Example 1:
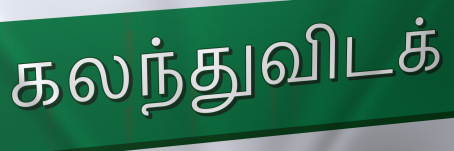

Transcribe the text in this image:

கலந்துவிடக்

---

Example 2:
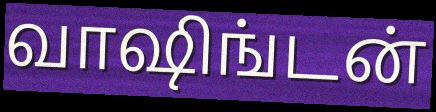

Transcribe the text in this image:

வாஷிங்டன்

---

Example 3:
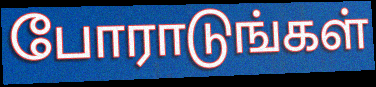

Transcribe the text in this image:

போராடுங்கள்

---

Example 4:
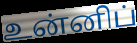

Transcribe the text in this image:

உன்னிப்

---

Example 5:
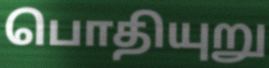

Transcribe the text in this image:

பொதியுறு